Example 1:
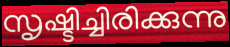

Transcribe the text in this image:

സൃഷ്ടിച്ചിരിക്കുന്നു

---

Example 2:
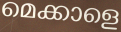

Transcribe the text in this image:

മെക്കാളെ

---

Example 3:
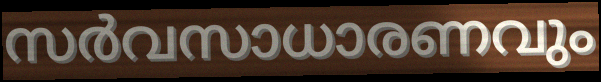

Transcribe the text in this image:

സർവസാധാരണവും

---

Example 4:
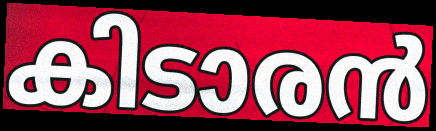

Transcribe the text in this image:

കിടാരൻ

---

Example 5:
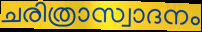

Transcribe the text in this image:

ചരിത്രാസ്വാദനം